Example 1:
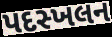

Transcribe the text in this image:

પદસ્ખલન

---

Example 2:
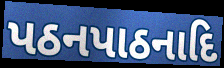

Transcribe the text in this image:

પઠનપાઠનાદિ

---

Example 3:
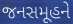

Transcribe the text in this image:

જનસમૂહને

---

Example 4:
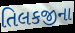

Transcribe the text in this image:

તિલકજીના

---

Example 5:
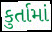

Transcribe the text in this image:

કુર્તામાં